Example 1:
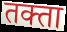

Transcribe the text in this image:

तक्ता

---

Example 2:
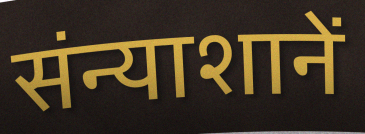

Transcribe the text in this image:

संन्याशानें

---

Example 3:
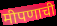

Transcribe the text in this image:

मीपणाची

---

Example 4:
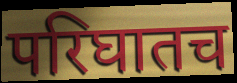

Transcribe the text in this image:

परिघातच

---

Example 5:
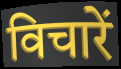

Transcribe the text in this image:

विचारें